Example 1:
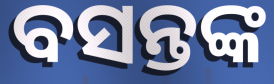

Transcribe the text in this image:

ବସନ୍ତଙ୍କ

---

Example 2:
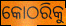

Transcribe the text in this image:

କୋଠରିକୁ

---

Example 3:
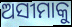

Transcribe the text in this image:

ଅସୀମାକୁ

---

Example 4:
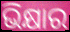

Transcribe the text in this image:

ଭିକ୍ଷାର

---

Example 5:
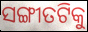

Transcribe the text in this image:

ସଙ୍ଗୀତଟିକୁ